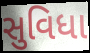
સુવિધા